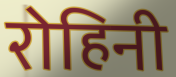
रोहिनी